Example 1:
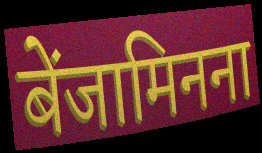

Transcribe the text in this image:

बेंजामिनना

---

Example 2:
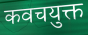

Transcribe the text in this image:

कवचयुक्त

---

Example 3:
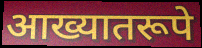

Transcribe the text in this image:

आख्यातरूपे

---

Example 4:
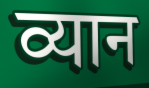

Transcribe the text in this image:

व्यान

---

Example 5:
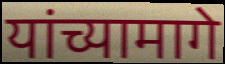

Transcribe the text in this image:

यांच्यामागे